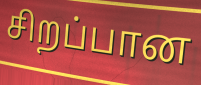
சிறப்பான